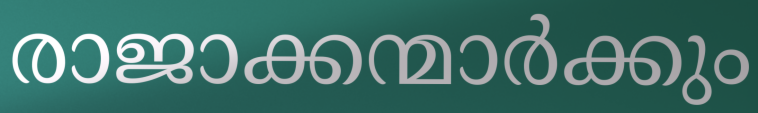
രാജാക്കന്മാർക്കും